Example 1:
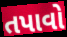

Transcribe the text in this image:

તપાવો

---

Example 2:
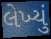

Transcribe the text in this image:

લેખ્યું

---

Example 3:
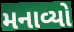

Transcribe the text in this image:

મનાવ્યો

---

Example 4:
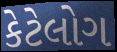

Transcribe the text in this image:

કેટેલોગ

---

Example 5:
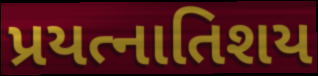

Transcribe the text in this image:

પ્રયત્નાતિશય